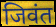
जिवंत